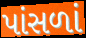
પાંસળાં